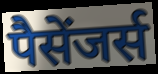
पैसेंजर्स